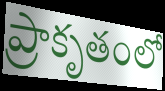
ప్రాకృతంలో